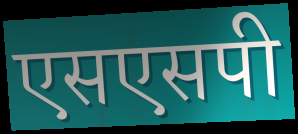
एसएसपी